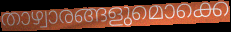
താഴ്വാരങ്ങളുമൊക്കെ